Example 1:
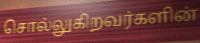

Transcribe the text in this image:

சொல்லுகிறவர்களின்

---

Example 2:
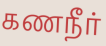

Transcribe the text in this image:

கணநீர்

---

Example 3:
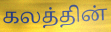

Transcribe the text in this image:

கலத்தின்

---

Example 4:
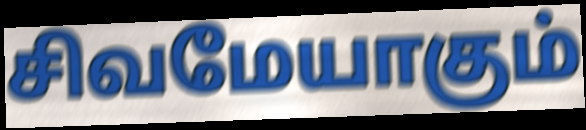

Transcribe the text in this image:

சிவமேயாகும்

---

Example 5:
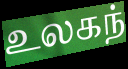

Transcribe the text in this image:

உலகந்